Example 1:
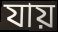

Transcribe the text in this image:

যায়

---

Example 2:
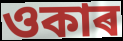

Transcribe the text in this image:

ওকাৰ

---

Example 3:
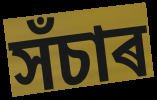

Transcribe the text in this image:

সঁচাৰ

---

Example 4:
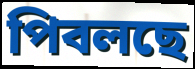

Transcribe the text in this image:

পিবলছে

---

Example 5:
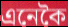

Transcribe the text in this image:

এনেকৈ